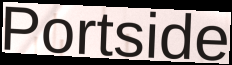
Portside